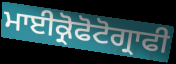
ਮਾਈਕ੍ਰੋਫੋਟੋਗ੍ਰਾਫੀ